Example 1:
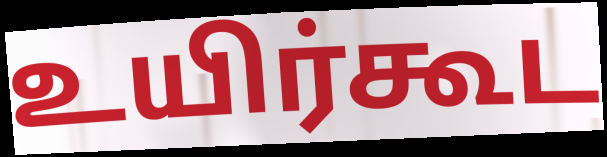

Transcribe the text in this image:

உயிர்கூட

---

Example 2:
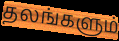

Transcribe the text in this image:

தலங்களும்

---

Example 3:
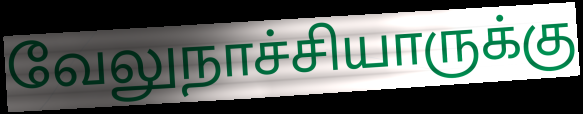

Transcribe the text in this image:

வேலுநாச்சியாருக்கு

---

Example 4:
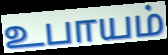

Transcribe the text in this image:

உபாயம்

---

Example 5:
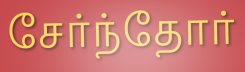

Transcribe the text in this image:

சேர்ந்தோர்